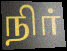
நிர்